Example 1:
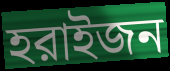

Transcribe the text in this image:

হরাইজন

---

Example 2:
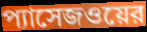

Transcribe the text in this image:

প্যাসেজওয়ের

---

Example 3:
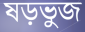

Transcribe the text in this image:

ষড়ভুজ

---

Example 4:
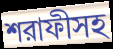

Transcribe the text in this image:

শরাফীসহ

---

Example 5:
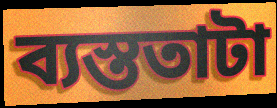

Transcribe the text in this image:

ব্যস্ততাটা